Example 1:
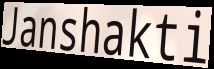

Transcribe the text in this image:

Janshakti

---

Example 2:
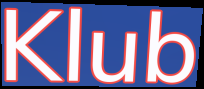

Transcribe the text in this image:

Klub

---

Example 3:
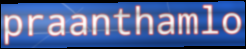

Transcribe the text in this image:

praanthamlo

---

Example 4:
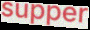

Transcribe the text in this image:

supper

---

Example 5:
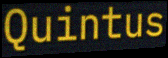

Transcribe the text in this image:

Quintus